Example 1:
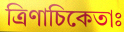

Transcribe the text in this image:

ত্রিণাচিকেতাঃ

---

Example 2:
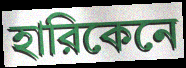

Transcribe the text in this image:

হারিকেনে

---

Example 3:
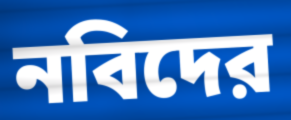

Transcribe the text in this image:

নবিদের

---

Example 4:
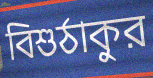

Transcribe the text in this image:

বিশুঠাকুর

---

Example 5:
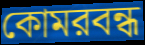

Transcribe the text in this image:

কোমরবন্ধ